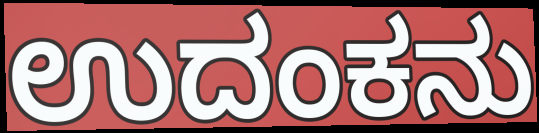
ಉದಂಕನು